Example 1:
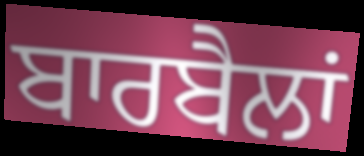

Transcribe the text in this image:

ਬਾਰਬੈਲਾਂ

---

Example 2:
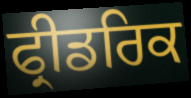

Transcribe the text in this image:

ਫ੍ਰੀਡਰਿਕ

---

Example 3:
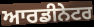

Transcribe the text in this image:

ਆਰਡੀਨੇਟਰ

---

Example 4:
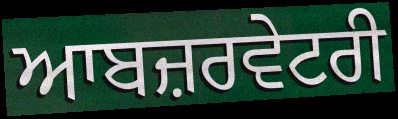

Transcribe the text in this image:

ਆਬਜ਼ਰਵੇਟਰੀ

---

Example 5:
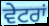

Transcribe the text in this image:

ਵੇਟਰਾਂ